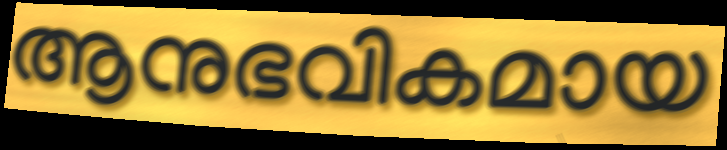
ആനുഭവികമായ